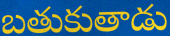
బతుకుతాడు